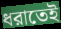
ধরাতেই